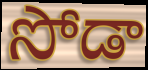
సోడా